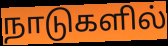
நாடுகளில்